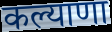
कल्याणा